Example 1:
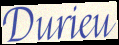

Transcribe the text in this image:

Durieu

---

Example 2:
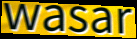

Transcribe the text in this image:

wasar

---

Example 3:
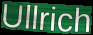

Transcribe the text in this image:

Ullrich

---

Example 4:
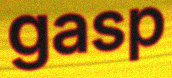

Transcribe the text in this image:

gasp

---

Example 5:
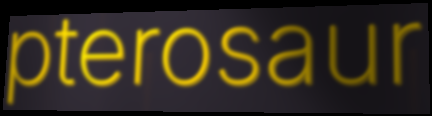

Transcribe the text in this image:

pterosaur